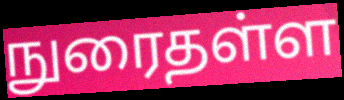
நுரைதள்ள